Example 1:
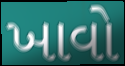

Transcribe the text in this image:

ખાવો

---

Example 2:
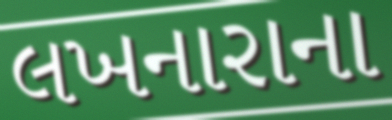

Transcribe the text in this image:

લખનારાના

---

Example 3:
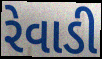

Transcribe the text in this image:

રેવાડી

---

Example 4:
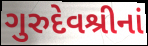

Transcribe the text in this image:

ગુરુદેવશ્રીનાં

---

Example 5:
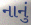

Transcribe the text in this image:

નાનું